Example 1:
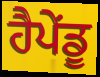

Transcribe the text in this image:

ਹੈਪੇਂਡੂ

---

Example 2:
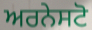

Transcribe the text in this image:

ਅਰਨੇਸਟੋ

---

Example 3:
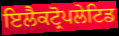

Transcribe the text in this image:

ਇਲੈਕਟ੍ਰੋਪਲੇਟਿਡ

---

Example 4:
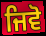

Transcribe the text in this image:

ਜਿਵੋ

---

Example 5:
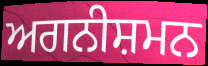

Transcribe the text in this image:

ਅਗਨੀਸ਼ਮਨ